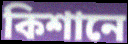
কিশানে